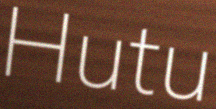
Hutu